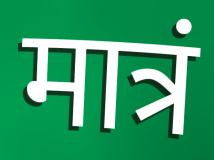
मात्रं